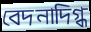
বেদনাদিগ্ধ